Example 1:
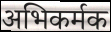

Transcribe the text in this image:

अभिकर्मक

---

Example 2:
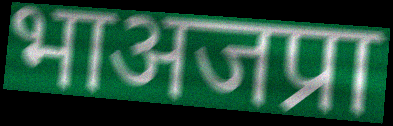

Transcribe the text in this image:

भाअजप्रा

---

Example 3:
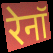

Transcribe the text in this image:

रेनॉ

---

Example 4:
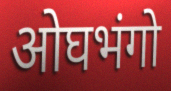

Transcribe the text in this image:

ओघभंगो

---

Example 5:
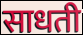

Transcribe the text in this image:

साधती